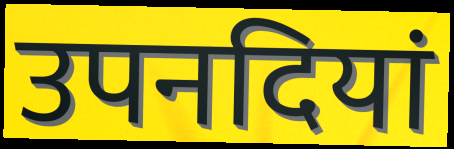
उपनदियां